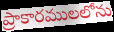
ప్రాకారములలోను